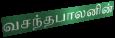
வசந்தபாலனின்